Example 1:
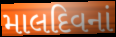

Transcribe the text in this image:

માલદિવનાં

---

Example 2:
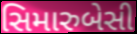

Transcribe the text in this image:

સિમારુબેસી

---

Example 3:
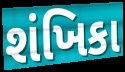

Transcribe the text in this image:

શંખિકા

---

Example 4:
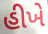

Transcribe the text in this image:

હીખે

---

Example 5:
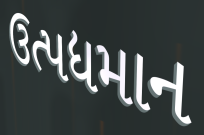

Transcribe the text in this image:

ઉત્પદ્યમાન